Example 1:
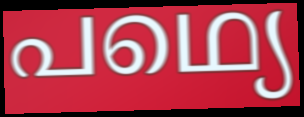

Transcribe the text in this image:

പഥ്യെ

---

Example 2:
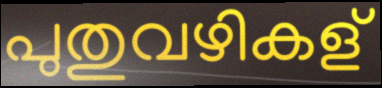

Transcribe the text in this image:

പുതുവഴികള്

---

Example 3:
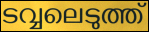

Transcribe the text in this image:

ടവ്വലെടുത്ത്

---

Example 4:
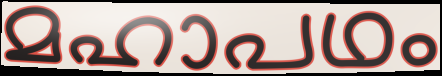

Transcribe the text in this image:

മഹാപഥം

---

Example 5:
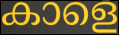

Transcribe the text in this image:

കാളെ